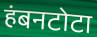
हंबनटोटा